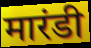
मारंडी